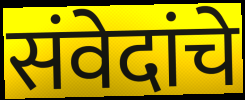
संवेदांचे